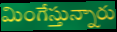
మింగేస్తున్నారు